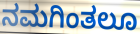
ನಮಗಿಂತಲೂ